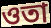
ওতা